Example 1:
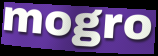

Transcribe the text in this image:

mogro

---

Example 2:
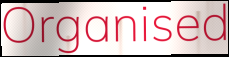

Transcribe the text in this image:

Organised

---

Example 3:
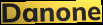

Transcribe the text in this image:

Danone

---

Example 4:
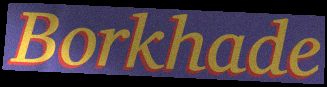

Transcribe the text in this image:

Borkhade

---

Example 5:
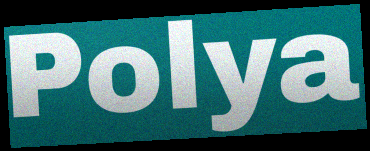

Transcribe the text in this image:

Polya